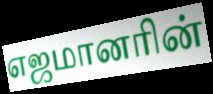
எஜமானரின்